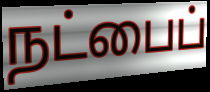
நட்பைப்